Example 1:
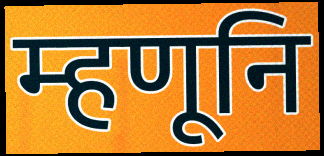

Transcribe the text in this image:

म्हणूनि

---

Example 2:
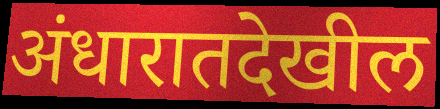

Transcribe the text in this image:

अंधारातदेखील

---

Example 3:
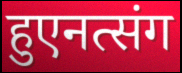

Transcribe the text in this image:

हुएनत्संग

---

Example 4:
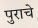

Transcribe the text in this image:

पुराचे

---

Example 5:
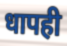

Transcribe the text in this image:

धापही